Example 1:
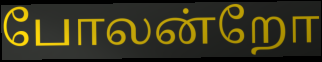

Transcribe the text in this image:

போலன்றோ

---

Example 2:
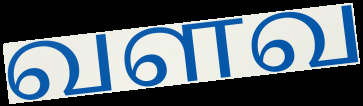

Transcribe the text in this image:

வளவ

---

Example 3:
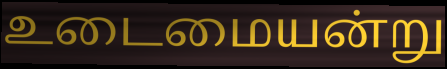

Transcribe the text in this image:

உடைமையன்று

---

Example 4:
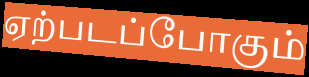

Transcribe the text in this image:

ஏற்படப்போகும்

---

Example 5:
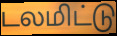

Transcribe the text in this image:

டலமிட்டு